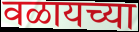
वळायच्या